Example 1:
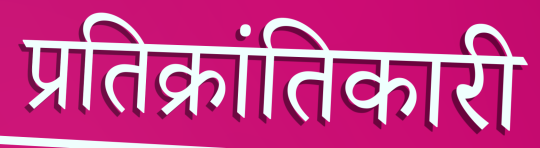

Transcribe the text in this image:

प्रतिक्रांतिकारी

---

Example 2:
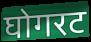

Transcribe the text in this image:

घोगरट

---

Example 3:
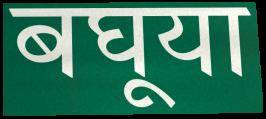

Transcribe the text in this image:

बघूया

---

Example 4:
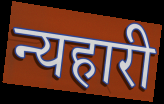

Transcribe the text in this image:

न्यहारी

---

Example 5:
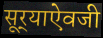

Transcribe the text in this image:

सूर्याऐवजी